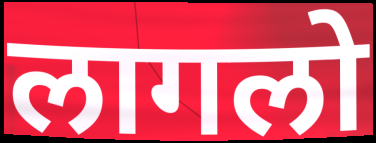
लागलो